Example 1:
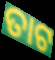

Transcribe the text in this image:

ତାଟ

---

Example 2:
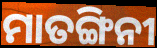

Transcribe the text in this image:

ମାତଙ୍ଗିନୀ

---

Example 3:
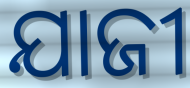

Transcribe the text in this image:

ଯାଜୀ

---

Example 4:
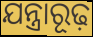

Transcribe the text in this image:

ଯନ୍ତ୍ରାରୂଢ଼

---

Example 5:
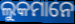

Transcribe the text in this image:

ଲୁକମାନେ